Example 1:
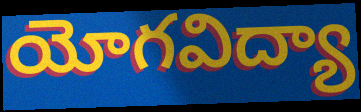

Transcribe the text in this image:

యోగవిద్యా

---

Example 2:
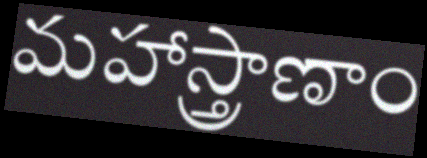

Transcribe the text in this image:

మహాస్త్రాణాం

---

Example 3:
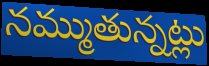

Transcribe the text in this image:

నమ్ముతున్నట్లు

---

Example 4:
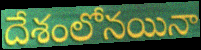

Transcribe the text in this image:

దేశంలోనయినా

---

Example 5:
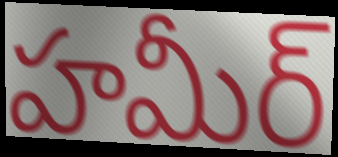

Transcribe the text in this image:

హమీర్